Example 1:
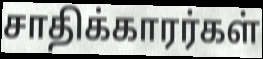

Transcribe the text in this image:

சாதிக்காரர்கள்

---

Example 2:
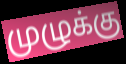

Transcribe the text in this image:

முழுக்கு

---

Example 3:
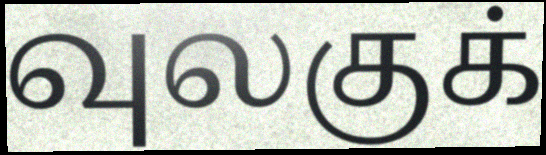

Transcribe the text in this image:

வுலகுக்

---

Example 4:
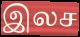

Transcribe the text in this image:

இலச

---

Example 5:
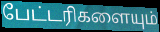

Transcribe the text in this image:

பேட்டரிகளையும்